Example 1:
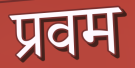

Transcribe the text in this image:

प्रवम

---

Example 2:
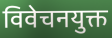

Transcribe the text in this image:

विवेचनयुक्त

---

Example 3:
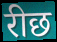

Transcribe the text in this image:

रीछ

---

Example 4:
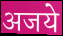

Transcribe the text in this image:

अजये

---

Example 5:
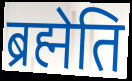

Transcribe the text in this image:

ब्रह्मेति